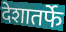
देशातर्फे